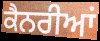
ਕੈਨਰੀਆਂ